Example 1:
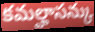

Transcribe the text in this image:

కమల్హాసన్కు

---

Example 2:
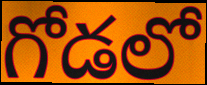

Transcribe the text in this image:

గోడలో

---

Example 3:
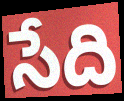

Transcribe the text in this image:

సేది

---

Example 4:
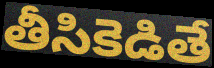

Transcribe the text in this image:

తీసికెడితే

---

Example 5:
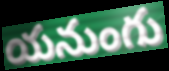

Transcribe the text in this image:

యనుంగు